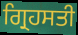
ਗ੍ਰਿਹਸਤੀ